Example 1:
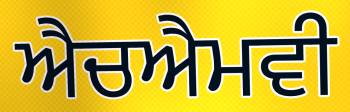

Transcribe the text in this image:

ਐਚਐਮਵੀ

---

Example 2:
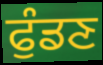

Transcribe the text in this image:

ਫੁੰਡਣ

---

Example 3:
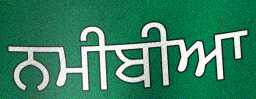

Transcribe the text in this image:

ਨਮੀਬੀਆ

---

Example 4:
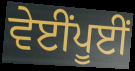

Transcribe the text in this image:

ਵੇਈਂਪੂਈਂ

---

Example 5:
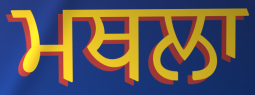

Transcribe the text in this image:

ਮਥਲਾ